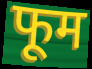
फूम